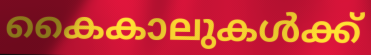
കൈകാലുകൾക്ക്